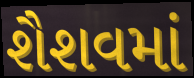
શૈશવમાં